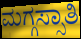
ಮಗ್ಗಸ್ಸಾತಿ